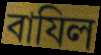
বাযিল